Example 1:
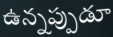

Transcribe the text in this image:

ఉన్నప్పుడూ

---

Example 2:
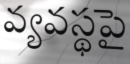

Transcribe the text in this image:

వ్యవస్థపై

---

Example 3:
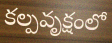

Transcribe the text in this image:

కల్పవృక్షంలో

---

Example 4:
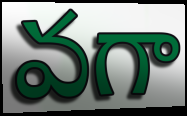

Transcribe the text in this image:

వగా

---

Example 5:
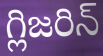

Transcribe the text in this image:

గ్లిజరిన్